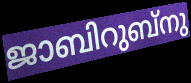
ജാബിറുബ്നു